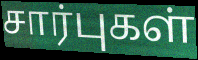
சார்புகள்